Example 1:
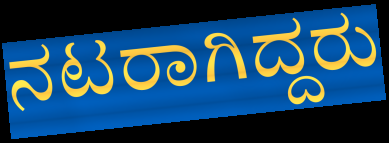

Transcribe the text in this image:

ನಟರಾಗಿದ್ದರು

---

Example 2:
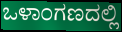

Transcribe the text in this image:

ಒಳಾಂಗಣದಲ್ಲಿ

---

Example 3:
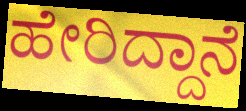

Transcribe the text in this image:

ಹೇರಿದ್ದಾನೆ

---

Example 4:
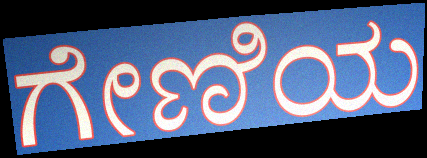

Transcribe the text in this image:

ಗೇಣಿಯ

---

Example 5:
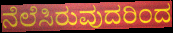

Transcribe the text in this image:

ನೆಲೆಸಿರುವುದರಿಂದ